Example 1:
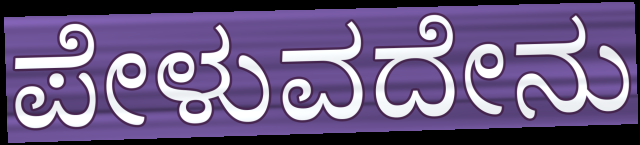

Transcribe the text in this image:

ಪೇಳುವದೇನು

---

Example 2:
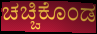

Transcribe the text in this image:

ಚಚ್ಚಿಕೊಂಡ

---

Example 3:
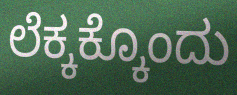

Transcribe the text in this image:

ಲೆಕ್ಕಕ್ಕೊಂದು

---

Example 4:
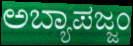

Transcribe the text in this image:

ಅಬ್ಯಾಪಜ್ಜಂ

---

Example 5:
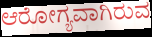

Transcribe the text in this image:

ಆರೋಗ್ಯವಾಗಿರುವ